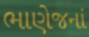
ભાણેજનાં